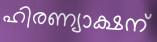
ഹിരണ്യാക്ഷന്